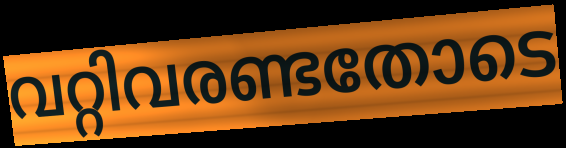
വറ്റിവരണ്ടതോടെ